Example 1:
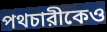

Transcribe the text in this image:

পথচারীকেও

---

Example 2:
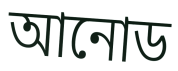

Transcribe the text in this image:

আনোড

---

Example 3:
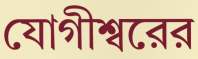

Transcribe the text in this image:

যোগীশ্বরের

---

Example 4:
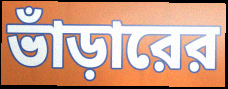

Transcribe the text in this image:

ভাঁড়ারের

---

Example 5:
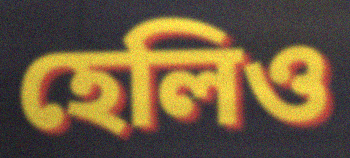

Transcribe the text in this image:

হেলিও